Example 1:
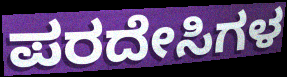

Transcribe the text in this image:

ಪರದೇಸಿಗಳ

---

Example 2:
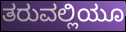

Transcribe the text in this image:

ತರುವಲ್ಲಿಯೂ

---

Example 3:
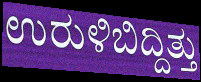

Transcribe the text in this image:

ಉರುಳಿಬಿದ್ದಿತ್ತು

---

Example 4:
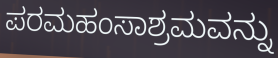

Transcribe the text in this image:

ಪರಮಹಂಸಾಶ್ರಮವನ್ನು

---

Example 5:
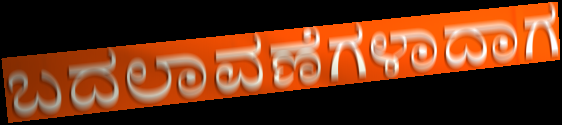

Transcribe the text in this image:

ಬದಲಾವಣೆಗಳಾದಾಗ